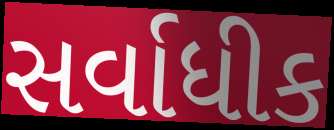
સર્વાધીક